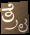
ತ್ರೈ